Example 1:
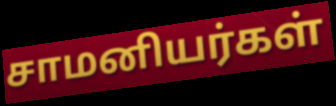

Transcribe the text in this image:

சாமனியர்கள்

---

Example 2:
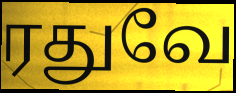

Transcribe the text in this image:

ரதுவே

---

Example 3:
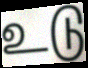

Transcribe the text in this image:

உடு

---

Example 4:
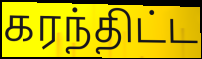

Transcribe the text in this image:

கரந்திட்ட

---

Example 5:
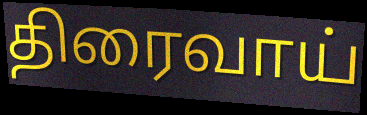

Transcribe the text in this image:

திரைவாய்